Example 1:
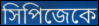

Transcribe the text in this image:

সিপিজেকে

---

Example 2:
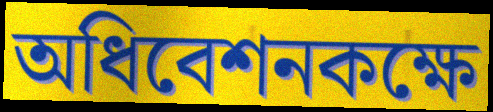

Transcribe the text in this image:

অধিবেশনকক্ষে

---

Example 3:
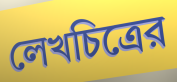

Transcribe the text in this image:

লেখচিত্রের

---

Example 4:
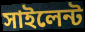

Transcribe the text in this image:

সাইলেন্ট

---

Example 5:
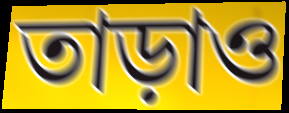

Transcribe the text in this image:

তাড়াও